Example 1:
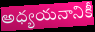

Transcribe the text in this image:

అధ్యయనానికీ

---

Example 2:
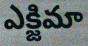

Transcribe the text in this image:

ఎక్జిమా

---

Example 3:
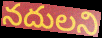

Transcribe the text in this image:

నదులని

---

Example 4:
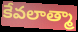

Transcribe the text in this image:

కేవలాత్మా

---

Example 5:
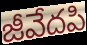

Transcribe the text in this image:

జీవేదపి